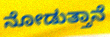
ನೋಡುತ್ತಾನೆ